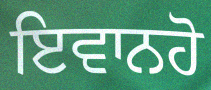
ਇਵਾਨਹੋ